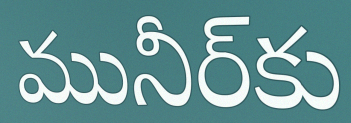
మునీర్‌కు